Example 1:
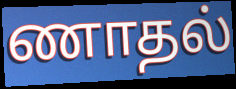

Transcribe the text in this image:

ணாதல்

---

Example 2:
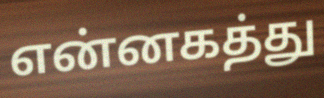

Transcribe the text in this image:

என்னகத்து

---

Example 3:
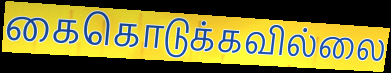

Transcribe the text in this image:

கைகொடுக்கவில்லை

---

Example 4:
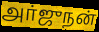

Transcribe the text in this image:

அர்ஜுநன்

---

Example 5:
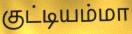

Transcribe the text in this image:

குட்டியம்மா